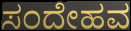
ಸಂದೇಹವ